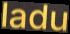
ladu